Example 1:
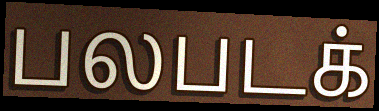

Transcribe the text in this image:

பலபடக்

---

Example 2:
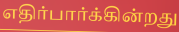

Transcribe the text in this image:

எதிர்பார்க்கின்றது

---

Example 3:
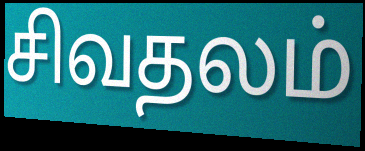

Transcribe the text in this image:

சிவதலம்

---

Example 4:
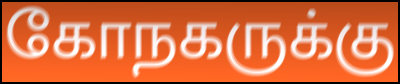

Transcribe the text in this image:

கோநகருக்கு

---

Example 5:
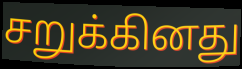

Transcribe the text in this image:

சறுக்கினது